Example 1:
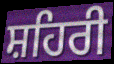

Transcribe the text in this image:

ਸ਼ਹਿਰੀ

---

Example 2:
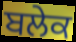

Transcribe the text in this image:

ਬਲੇਕ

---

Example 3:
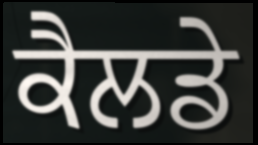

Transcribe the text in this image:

ਕੈਲਡੇ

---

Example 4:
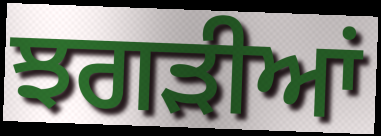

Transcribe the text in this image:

ਝਗੜੀਆਂ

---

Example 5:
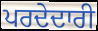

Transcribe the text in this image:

ਪਰਦੇਦਾਰੀ